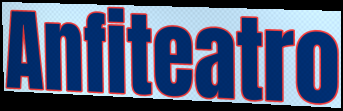
Anfiteatro